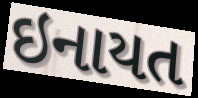
ઇનાયત